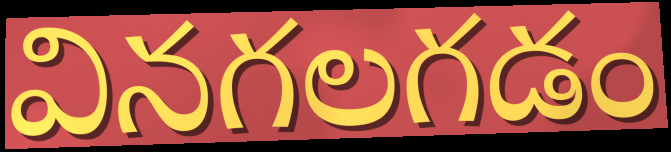
వినగలగడం